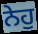
ਨੇਹੁ